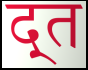
द्त